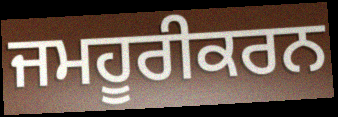
ਜਮਹੂਰੀਕਰਨ